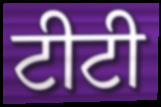
ਟੀਟੀ